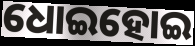
ଧୋଇହୋଇ